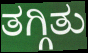
ತಗ್ಗಿತು